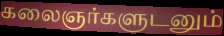
கலைஞர்களுடனும்